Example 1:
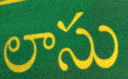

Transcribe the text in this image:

లాసు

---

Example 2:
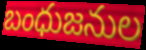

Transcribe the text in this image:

బంధుజనుల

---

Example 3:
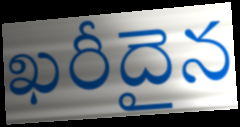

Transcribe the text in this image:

ఖరీదైన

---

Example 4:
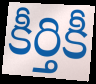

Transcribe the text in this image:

కీర్తికీ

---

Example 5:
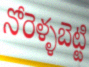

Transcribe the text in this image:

నోరెళ్ళబెట్టి